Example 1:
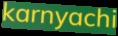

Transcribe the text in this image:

karnyachi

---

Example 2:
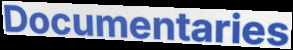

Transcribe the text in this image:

Documentaries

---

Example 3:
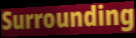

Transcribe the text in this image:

Surrounding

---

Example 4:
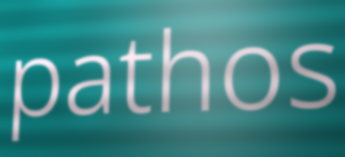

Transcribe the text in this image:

pathos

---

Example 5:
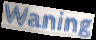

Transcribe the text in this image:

Waning